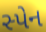
સ્પેન